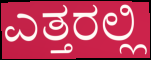
ಎತ್ತರಲ್ಲಿ